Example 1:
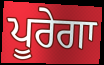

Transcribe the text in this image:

ਪੂਰੇਗਾ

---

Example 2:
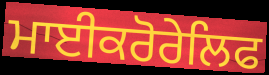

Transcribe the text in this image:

ਮਾਈਕਰੋਰੇਲਿਫ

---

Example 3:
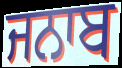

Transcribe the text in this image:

ਜਨਾਬ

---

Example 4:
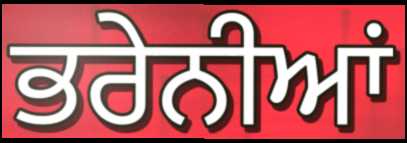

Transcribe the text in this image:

ਭਰੇਨੀਆਂ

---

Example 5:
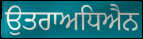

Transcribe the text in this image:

ਉਤਰਾਅਧਿਐਨ